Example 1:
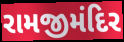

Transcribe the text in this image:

રામજીમંદિર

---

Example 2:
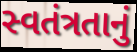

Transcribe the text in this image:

સ્વતંત્રતાનું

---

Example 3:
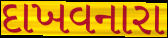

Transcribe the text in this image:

દાખવનારા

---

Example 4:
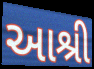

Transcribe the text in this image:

આશ્રી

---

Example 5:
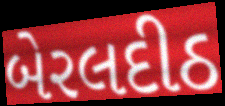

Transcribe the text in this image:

બેરલદીઠ